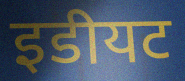
इडीयट